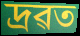
দ্ৰৱত